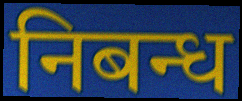
निबन्‍ध